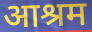
आश्रम